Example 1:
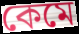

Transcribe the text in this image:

কেমে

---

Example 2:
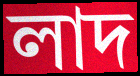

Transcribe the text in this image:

লাদ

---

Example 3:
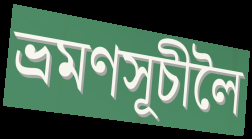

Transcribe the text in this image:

ভ্ৰমণসূচীলৈ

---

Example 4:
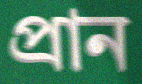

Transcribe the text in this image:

প্ৰান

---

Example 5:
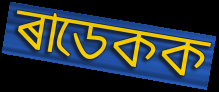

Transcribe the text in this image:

ৰাডেকক